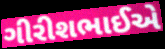
ગીરીશભાઈએ